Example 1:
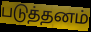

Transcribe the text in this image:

படுத்தனம்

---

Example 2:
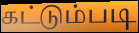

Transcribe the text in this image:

கட்டும்படி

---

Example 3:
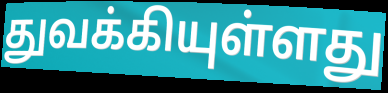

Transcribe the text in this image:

துவக்கியுள்ளது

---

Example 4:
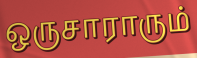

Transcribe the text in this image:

ஒருசாராரும்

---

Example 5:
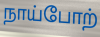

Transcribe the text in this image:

நாய்போற்